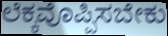
ಲೆಕ್ಕವೊಪ್ಪಿಸಬೇಕು